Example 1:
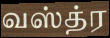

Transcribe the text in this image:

வஸ்த்ர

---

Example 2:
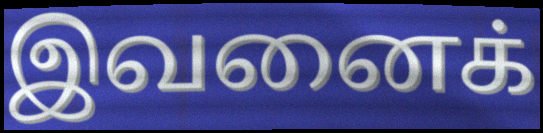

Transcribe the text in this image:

இவனைக்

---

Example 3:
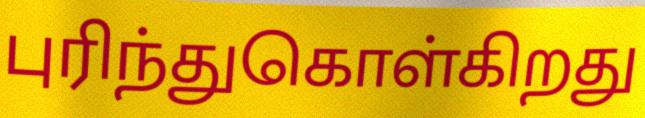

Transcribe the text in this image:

புரிந்துகொள்கிறது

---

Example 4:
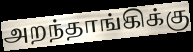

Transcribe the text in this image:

அறந்தாங்கிக்கு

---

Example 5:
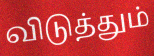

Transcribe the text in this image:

விடுத்தும்